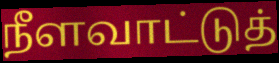
நீளவாட்டுத்